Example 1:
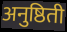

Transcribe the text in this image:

अनुष्ठिती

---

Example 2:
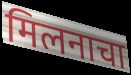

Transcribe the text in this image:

मिलनाचा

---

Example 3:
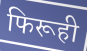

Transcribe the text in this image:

फिरूही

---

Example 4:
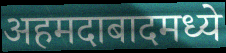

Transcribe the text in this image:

अहमदाबादमध्ये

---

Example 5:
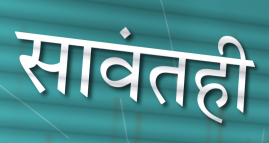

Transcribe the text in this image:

सावंतही